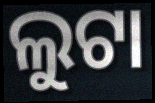
ଲୁଟା